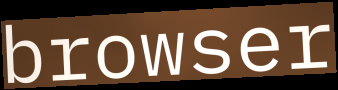
browser